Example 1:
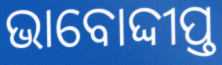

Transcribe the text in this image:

ଭାବୋଦ୍ଦୀପ୍ତ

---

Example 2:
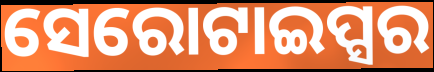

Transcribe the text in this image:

ସେରୋଟାଇପ୍ସର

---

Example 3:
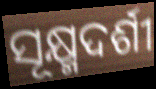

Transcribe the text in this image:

ସୂକ୍ଷ୍ମଦର୍ଶୀ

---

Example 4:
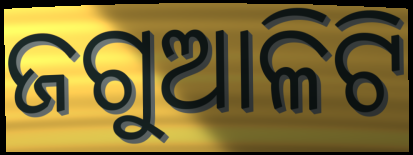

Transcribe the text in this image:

ଜଗୁଆଳିଟି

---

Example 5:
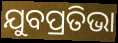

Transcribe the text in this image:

ଯୁବପ୍ରତିଭା